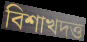
বিশাখদত্ত